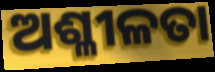
ଅଶ୍ଳୀଳତା